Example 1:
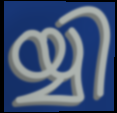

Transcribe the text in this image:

യ്യി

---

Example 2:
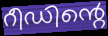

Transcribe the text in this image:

റീഡിന്റെ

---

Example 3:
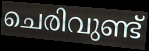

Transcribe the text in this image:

ചെരിവുണ്ട്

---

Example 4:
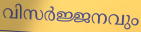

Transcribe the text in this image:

വിസർജ്ജനവും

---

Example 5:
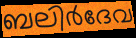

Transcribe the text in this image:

ബലിർദേവ